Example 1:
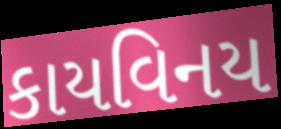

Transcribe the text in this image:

કાયવિનય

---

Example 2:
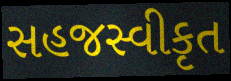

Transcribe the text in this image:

સહજસ્વીકૃત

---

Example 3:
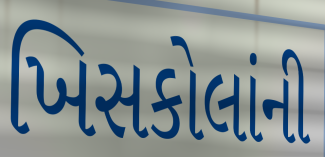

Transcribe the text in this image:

ખિસકોલાંની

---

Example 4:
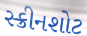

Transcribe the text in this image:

સ્ક્રીનશોટ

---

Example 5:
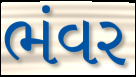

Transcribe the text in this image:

ભંવર